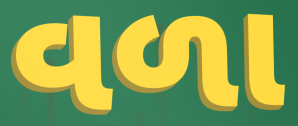
વળા